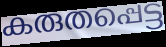
കരുതപ്പെട്ട